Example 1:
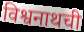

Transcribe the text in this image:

विश्वनाथची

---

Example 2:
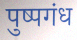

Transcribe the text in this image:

पुष्पगंध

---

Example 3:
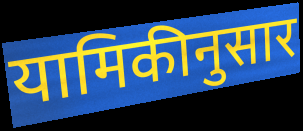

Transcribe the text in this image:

यामिकीनुसार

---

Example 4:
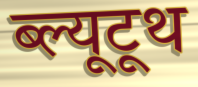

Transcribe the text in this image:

ब्ल्यूटूथ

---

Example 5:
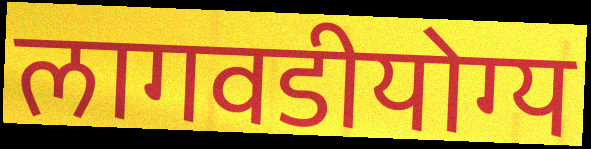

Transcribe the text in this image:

लागवडीयोग्य